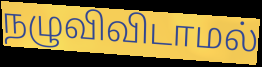
நழுவிவிடாமல்